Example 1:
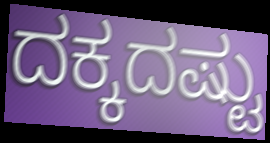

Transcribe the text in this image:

ದಕ್ಕದಷ್ಟು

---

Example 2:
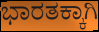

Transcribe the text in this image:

ಭಾರತಕ್ಕಾಗಿ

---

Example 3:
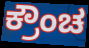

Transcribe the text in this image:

ಕ್ರೌಂಚ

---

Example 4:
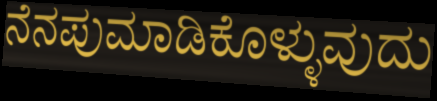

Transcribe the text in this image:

ನೆನಪುಮಾಡಿಕೊಳ್ಳುವುದು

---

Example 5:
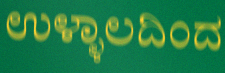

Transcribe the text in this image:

ಉಳ್ಳಾಲದಿಂದ